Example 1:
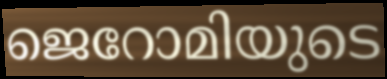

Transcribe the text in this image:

ജെറോമിയുടെ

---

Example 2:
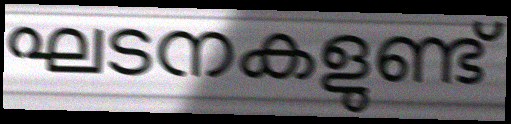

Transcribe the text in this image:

ഘടനകളുണ്ട്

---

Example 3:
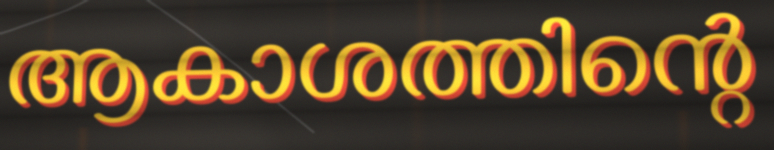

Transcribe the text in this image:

ആകാശത്തിന്റെ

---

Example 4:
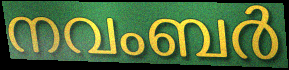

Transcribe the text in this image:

നവംബർ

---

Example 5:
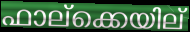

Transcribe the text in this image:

ഫാല്ക്കെയില്